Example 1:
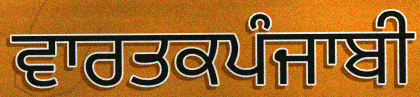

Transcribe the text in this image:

ਵਾਰਤਕਪੰਜਾਬੀ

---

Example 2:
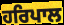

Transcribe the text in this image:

ਹਰਿਪਾਲ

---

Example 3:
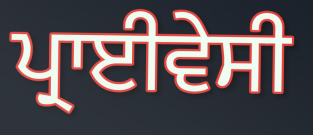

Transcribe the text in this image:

ਪ੍ਰਾਈਵੇਸੀ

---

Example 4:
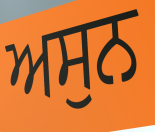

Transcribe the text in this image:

ਅਸੁਨ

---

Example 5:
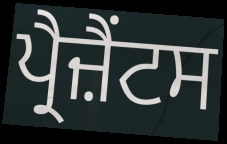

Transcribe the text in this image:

ਪ੍ਰੈਜ਼ੈਂਟਸ